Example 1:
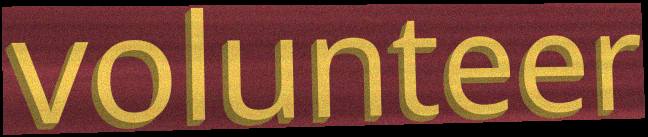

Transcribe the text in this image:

volunteer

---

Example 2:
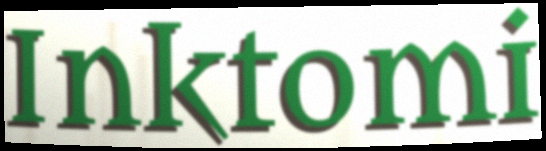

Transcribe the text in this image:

Inktomi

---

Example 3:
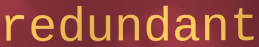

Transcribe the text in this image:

redundant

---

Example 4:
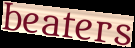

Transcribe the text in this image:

beaters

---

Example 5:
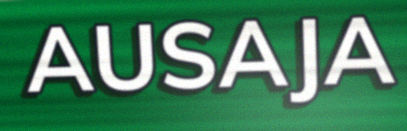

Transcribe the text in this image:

AUSAJA